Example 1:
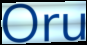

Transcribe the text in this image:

Oru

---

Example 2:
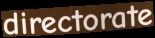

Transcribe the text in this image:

directorate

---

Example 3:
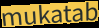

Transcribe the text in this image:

mukatab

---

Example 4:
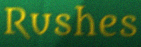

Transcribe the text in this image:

Rushes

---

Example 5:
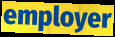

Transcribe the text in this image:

employer